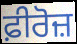
ਫ਼ੀਰੋਜ਼